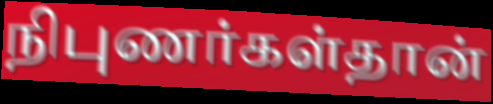
நிபுணர்கள்தான்